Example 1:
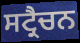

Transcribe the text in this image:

ਸਟ੍ਰੈਚਨ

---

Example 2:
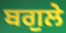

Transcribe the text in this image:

ਬਗੁਲੇ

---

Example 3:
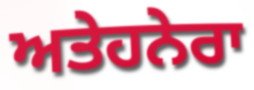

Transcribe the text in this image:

ਅਤੇਹਨੇਰਾ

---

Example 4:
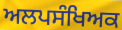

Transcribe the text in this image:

ਅਲਪਸੰਖਿਅਕ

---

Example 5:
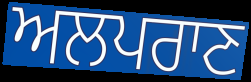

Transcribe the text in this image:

ਅਲਪਰਾਣ